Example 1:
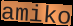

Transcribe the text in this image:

amiko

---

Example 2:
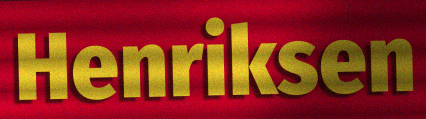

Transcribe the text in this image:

Henriksen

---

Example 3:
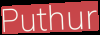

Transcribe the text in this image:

Puthur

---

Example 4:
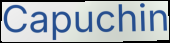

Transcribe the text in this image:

Capuchin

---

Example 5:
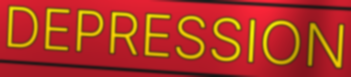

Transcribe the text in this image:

DEPRESSION